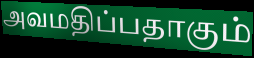
அவமதிப்பதாகும்